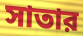
সাতার